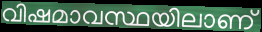
വിഷമാവസ്ഥയിലാണ്